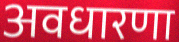
अवधारणा